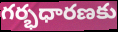
గర్భధారణకు